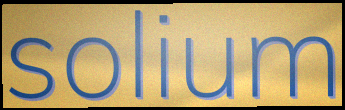
solium